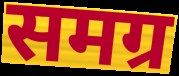
समग्र